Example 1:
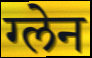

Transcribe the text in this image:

ग्लेन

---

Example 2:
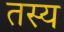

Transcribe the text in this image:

तस्य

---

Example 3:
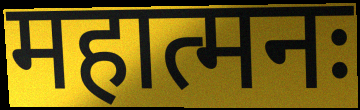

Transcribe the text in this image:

महात्मनः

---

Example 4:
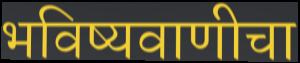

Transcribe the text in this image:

भविष्यवाणीचा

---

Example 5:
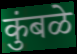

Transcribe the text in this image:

कुंबळे